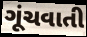
ગૂંચવાતી